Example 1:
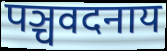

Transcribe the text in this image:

पञ्चवदनाय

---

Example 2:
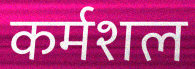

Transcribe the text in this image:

कर्मशल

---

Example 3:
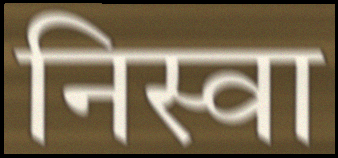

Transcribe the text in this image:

निस्वा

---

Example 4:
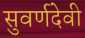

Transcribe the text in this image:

सुवर्णदेवी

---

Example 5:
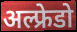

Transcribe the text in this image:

अल्फ्रेडो